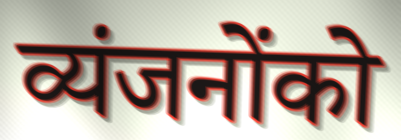
व्यंजनोंको